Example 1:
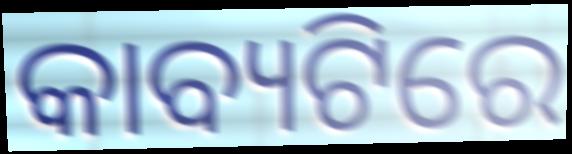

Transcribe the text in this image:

କାବ୍ୟଟିରେ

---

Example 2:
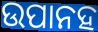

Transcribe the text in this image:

ଉପାନହ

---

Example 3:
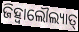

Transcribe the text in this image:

ଜିହ୍ଵାଲୌଲ୍ୟାତ୍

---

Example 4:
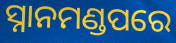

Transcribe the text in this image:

ସ୍ନାନମଣ୍ଡପରେ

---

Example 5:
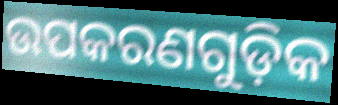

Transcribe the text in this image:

ଉପକରଣଗୁଡ଼ିକ